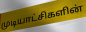
முடியாட்சிகளின்